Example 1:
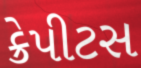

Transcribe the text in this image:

ક્રેપીટસ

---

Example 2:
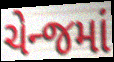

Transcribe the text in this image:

ચેન્જમાં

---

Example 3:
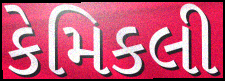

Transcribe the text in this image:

કેમિકલી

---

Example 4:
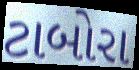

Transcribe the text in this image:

ટાબોરા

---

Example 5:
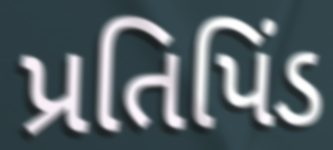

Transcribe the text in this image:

પ્રતિપિંડ